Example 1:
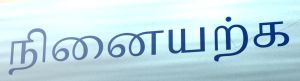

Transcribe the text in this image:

நினையற்க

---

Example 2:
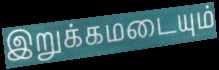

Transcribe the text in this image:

இறுக்கமடையும்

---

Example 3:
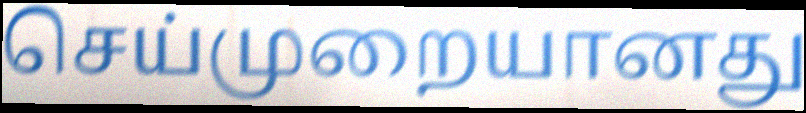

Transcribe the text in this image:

செய்முறையானது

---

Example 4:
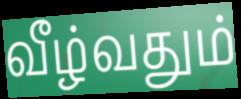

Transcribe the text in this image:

வீழ்வதும்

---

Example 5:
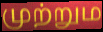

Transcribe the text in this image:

முற்றும